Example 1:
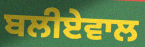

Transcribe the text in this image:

ਬਲੀਏਵਾਲ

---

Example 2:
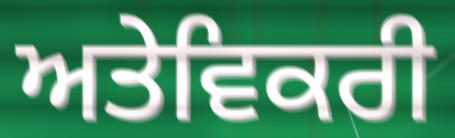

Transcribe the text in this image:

ਅਤੇਵਿਕਰੀ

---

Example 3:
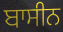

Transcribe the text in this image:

ਬਾਸੀਨ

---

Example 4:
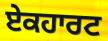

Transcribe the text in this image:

ਏਕਹਾਰਟ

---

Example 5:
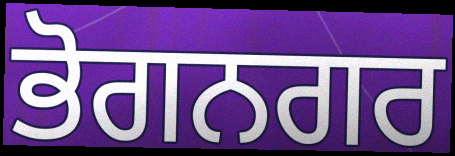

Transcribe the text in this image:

ਭੋਗਨਗਰ